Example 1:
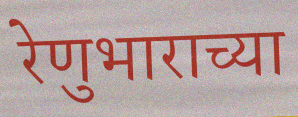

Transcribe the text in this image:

रेणुभाराच्या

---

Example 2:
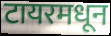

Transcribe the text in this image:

टायरमधून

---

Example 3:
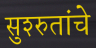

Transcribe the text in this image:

सुश्रुतांचे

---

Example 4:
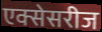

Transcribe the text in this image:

एक्सेसरीज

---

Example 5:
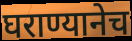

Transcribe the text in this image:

घराण्यानेच